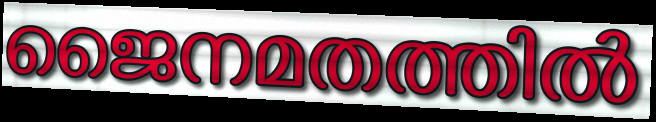
ജൈനമതത്തിൽ